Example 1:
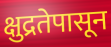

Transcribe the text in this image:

क्षुद्रतेपासून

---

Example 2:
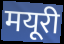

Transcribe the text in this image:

मयूरी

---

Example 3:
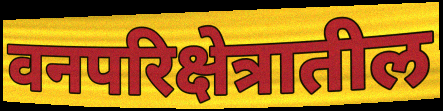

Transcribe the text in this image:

वनपरिक्षेत्रातील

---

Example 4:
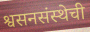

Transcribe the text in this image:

श्वसनसंस्थेची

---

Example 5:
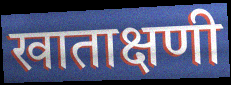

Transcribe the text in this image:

खाताक्षणी